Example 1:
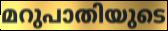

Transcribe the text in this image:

മറുപാതിയുടെ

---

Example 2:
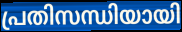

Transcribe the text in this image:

പ്രതിസന്ധിയായി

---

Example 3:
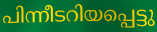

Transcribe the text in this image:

പിന്നീടറിയപ്പെട്ടു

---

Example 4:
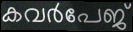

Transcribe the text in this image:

കവർപേജ്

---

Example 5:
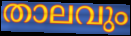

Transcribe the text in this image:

താലവും